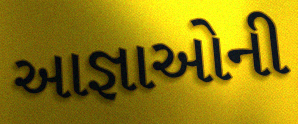
આજ્ઞાઓની